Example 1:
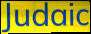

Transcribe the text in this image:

Judaic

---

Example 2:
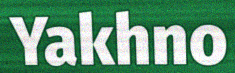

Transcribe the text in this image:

Yakhno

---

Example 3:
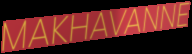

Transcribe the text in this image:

MAKHAVANNE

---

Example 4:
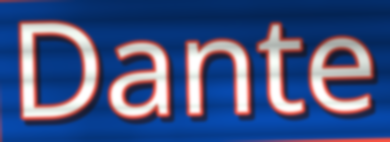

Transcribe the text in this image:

Dante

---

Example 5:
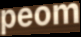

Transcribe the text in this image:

peom